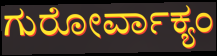
ಗುರೋರ್ವಾಕ್ಯಂ